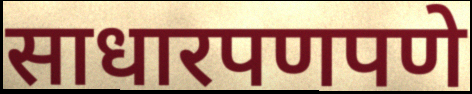
साधारपणपणे